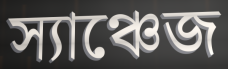
স্যাঞ্চেজ